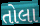
તોલા